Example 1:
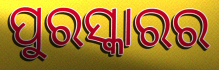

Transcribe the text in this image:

ପୁରସ୍କାରର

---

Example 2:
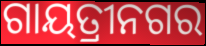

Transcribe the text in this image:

ଗାୟତ୍ରୀନଗର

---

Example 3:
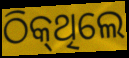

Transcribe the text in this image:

ଠିକ୍‌ଥିଲେ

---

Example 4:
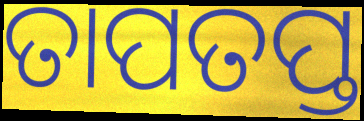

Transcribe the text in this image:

ତାପତପ୍ତ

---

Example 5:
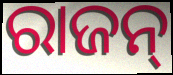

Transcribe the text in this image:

ରାଜନ୍